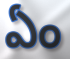
ఏం